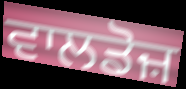
ਵਾਲਡੋਜ਼